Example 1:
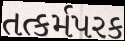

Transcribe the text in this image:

તત્કર્મપરક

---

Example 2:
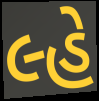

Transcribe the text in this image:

લ્હે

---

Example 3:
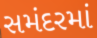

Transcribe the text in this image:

સમંદરમાં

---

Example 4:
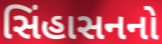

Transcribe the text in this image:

સિંહાસનનો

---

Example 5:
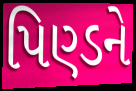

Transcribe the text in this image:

પિણ્ડને